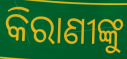
କିରାଣୀଙ୍କୁ